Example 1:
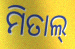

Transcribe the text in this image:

ମିତାଲ୍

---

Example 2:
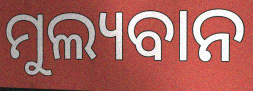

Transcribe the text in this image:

ମୁଲ୍ୟବାନ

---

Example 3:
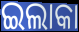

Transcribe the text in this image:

ଇଲାକା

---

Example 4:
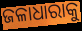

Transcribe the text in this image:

ଜଳାଧାରାକୁ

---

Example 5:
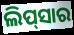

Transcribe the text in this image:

ଲିପ୍‌ସାର